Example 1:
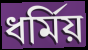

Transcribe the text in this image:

ধর্মিয়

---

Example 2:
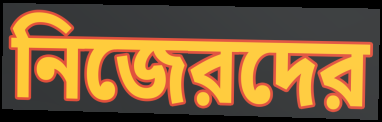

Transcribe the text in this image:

নিজেরদের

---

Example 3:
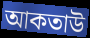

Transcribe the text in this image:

আকতাউ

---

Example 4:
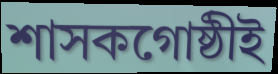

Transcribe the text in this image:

শাসকগোষ্ঠীই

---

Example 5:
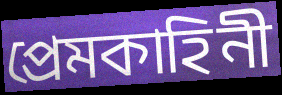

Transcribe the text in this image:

প্রেমকাহিনী